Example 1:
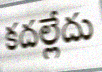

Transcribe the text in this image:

కదల్లేదు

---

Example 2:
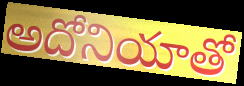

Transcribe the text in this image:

అదోనియాతో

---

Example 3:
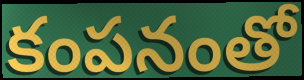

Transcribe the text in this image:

కంపనంతో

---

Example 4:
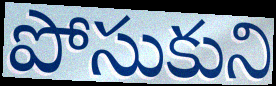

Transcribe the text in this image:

పోసుకుని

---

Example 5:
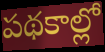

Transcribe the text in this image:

పథకాల్లో